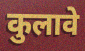
कुलावे